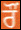
ਰੌਂ